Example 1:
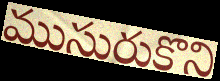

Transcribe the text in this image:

ముసురుకొని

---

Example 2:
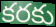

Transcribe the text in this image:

కరకు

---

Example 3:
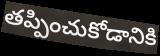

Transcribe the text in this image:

తప్పించుకోడానికి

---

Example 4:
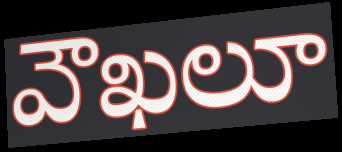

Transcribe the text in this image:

వౌఖలూ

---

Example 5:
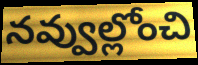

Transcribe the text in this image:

నవ్వుల్లోంచి